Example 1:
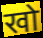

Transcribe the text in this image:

खो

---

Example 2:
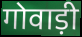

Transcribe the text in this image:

गोवाड़ी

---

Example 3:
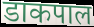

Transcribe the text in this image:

डाकपाल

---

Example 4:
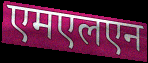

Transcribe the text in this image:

एमएलएन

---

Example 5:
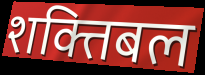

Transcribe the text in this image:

शक्तिबल